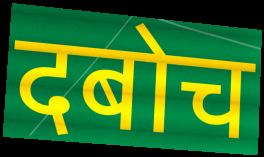
दबोच